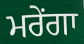
ਮਰੇਂਗਾ